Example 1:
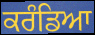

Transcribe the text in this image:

ਕਰੰਡਿਆ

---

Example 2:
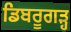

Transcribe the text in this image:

ਡਿਬਰੂਗੜ੍ਹ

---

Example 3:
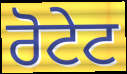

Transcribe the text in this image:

ਰੋਟੇਟ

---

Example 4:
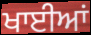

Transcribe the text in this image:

ਖਾਈਆਂ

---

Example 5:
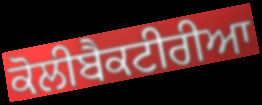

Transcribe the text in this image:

ਕੋਲੀਬੈਕਟੀਰੀਆ